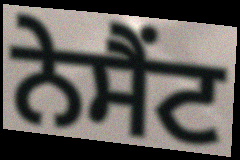
ਨੇਸੈਂਟ